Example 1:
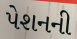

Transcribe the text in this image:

પેશનની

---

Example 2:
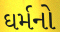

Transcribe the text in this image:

ઘર્મનો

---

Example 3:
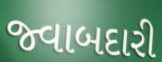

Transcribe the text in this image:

જ્વાબદારી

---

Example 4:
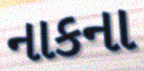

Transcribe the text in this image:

નાકના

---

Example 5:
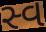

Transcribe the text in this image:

સ્વ